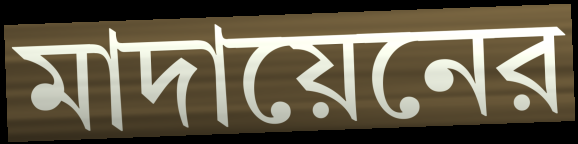
মাদায়েনের